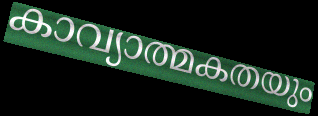
കാവ്യാത്മകതയും